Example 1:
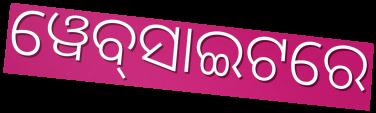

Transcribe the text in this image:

ୱେବ୍‍ସାଇଟରେ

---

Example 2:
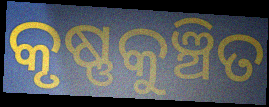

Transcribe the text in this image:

କୃଷ୍ଣକୁଞ୍ଚିତ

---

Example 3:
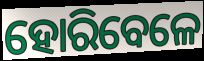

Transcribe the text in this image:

ହୋରିବେଳେ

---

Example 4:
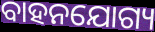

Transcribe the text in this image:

ବାହନଯୋଗ୍ୟ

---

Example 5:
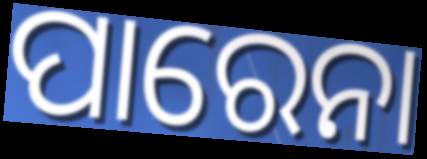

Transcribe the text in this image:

ପାରେନା